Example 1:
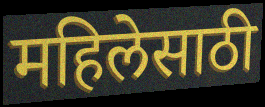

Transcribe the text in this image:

महिलेसाठी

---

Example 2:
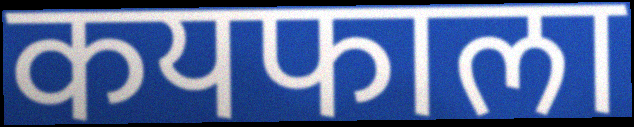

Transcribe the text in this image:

कयफाला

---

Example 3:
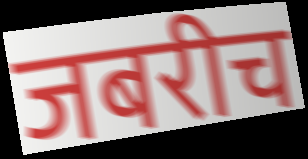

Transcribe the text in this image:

जबरीच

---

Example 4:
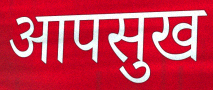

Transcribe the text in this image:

आपसुख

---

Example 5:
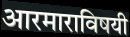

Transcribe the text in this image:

आरमाराविषयी